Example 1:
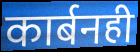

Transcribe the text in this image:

कार्बनही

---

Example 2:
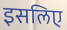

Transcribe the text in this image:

इसलिए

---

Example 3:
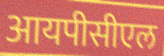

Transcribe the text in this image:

आयपीसीएल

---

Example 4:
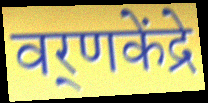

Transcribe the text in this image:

वर्णकेंद्रे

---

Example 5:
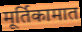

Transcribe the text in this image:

मूर्तिकामात